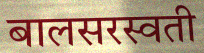
बालसरस्वती